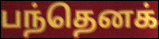
பந்தெனக்